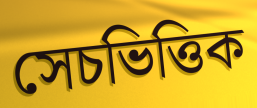
সেচভিত্তিক